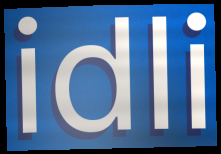
idli